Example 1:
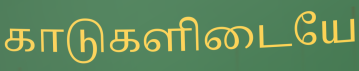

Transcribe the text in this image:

காடுகளிடையே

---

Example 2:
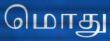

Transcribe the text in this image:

மொது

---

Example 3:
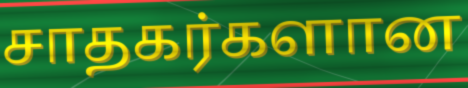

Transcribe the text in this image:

சாதகர்களான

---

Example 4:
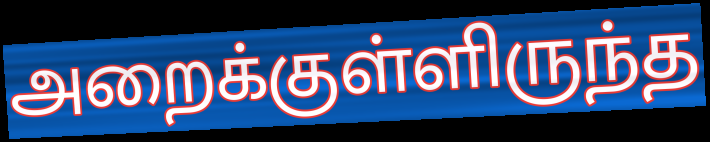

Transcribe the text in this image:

அறைக்குள்ளிருந்த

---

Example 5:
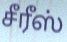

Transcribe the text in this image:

சீரீஸ்